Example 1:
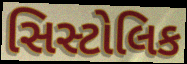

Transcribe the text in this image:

સિસ્ટોલિક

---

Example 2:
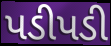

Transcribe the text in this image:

પડીપડી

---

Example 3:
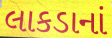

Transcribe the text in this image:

લાકડાનાં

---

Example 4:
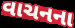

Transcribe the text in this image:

વાચનના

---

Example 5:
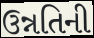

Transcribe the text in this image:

ઉન્નતિની